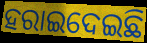
ହରାଇଦେଇଛି